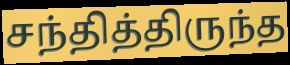
சந்தித்திருந்த